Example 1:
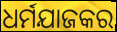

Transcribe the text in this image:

ଧର୍ମଯାଜକର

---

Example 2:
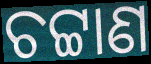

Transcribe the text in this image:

ଚଟ୍ଟାଣ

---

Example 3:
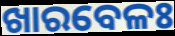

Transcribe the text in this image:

ଖାରବେଳଃ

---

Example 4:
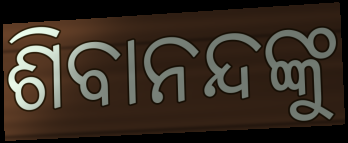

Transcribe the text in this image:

ଶିବାନନ୍ଦଙ୍କୁ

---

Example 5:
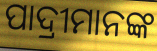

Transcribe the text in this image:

ପାଦ୍ରୀମାନଙ୍କ